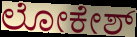
ಲೋಕೇಶ್